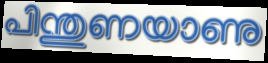
പിന്തുണയാണു